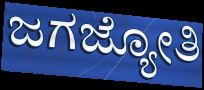
ಜಗಜ್ಯೋತಿ